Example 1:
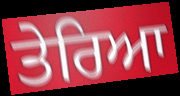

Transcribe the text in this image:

ਤੇਰਿਆ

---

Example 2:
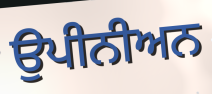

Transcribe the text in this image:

ਉਪੀਨੀਅਨ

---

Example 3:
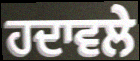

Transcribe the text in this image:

ਹਦਾਵਲੇ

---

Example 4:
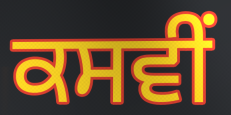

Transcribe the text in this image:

ਕਸਵੀਂ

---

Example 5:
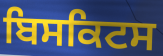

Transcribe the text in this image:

ਬਿਸਕਿਟਸ